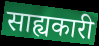
साह्यकारी